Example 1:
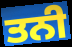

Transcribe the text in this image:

ਤਨੀ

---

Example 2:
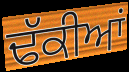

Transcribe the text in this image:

ਢੱਕੀਆਂ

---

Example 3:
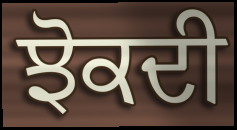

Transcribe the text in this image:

ਝੋਕਦੀ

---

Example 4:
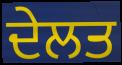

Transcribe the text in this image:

ਦੇਲਤ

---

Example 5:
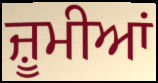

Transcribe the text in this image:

ਜ਼ੂਮੀਆਂ